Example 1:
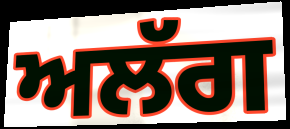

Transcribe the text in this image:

ਅਲੱਗ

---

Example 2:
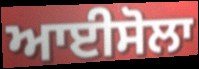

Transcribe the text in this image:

ਆਈਸੋਲਾ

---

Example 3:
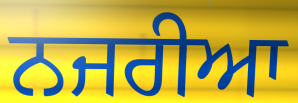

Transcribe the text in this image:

ਨਜਰੀਆ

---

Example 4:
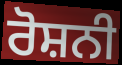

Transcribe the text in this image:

ਰੋਸ਼ਨੀ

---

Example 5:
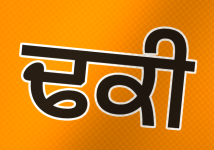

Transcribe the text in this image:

ਢਕੀ